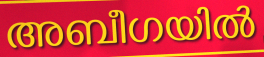
അബീഗയിൽ